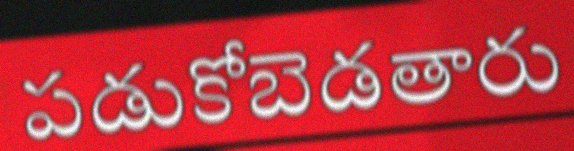
పడుకోబెడతారు